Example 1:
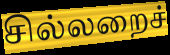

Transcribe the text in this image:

சில்லறைச்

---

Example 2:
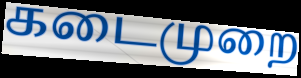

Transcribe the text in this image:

கடைமுறை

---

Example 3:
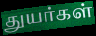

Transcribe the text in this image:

துயர்கள்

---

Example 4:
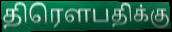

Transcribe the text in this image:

திரௌபதிக்கு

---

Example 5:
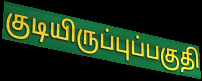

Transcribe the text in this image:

குடியிருப்புப்பகுதி